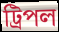
ট্রিপল